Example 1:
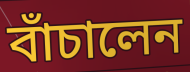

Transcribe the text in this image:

বাঁচালেন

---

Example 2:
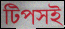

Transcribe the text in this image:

টিপসই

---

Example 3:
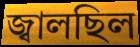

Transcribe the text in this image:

জ্বালছিল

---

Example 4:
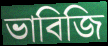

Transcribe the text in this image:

ভাবিজি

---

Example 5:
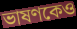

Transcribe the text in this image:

ভাষণকেও